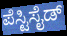
ಪೆಸ್ಟಿಸೈಡ್